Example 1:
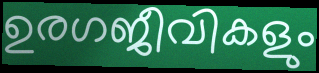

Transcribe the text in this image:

ഉരഗജീവികളും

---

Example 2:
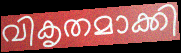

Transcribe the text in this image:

വികൃതമാക്കി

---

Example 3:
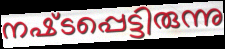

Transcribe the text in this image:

നഷ്‌ടപ്പെട്ടിരുന്നു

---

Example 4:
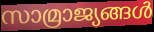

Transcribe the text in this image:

സാമ്രാജ്യങ്ങൾ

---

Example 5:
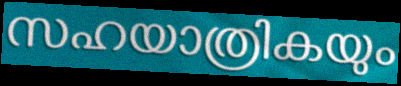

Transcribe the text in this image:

സഹയാത്രികയും